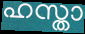
ഹസ്താ